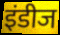
इंडीज